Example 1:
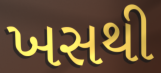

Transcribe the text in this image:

ખસથી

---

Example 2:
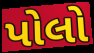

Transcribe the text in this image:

પોલો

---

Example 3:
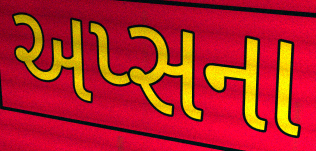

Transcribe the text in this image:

અપ્સના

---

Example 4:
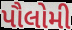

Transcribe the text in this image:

પૌલોમી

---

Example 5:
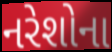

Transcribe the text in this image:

નરેશોના